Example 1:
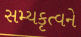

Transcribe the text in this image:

સમ્યકૃત્વને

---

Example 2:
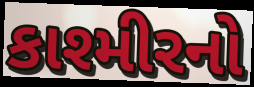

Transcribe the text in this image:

કાશ્મીરનો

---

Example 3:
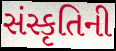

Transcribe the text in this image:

સંસ્કૃતિની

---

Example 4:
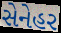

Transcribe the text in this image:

સેનેહર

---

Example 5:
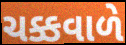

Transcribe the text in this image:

ચક્કવાળે